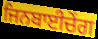
ਜਿਨਬਾਈਚੇਂਗ